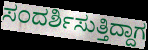
ಸಂದರ್ಶಿಸುತ್ತಿದ್ದಾಗ